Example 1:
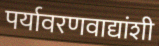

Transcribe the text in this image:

पर्यावरणवाद्यांशी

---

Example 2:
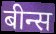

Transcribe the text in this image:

बीन्स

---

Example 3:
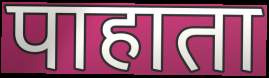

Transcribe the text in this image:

पाहाता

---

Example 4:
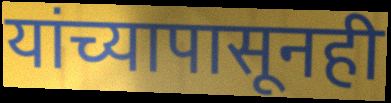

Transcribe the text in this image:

यांच्यापासूनही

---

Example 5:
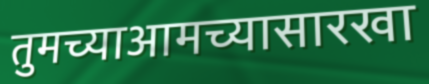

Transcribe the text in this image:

तुमच्याआमच्यासारखा